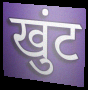
खुंट